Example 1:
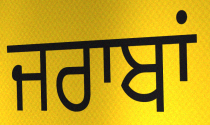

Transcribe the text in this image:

ਜਰਾਬਾਂ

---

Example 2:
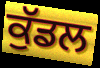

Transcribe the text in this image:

ਕੁੱਡਲ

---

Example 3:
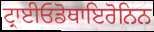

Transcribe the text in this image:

ਟ੍ਰਾਈਓਡੋਥਾਇਰੋਨਿਨ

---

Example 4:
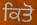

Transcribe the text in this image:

ਕਿਤੋ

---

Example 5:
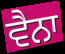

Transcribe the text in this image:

ਵੈਨਾ